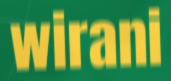
wirani